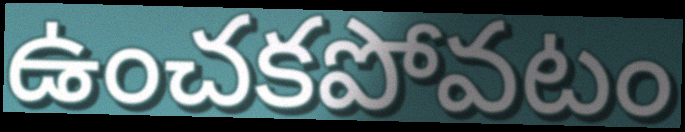
ఉంచకపోవటం